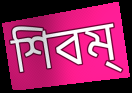
শিবম্